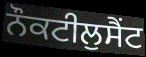
ਨੌਕਟੀਲੁਸੈਂਟ